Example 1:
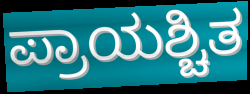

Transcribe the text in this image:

ಪ್ರಾಯಶ್ಚಿತ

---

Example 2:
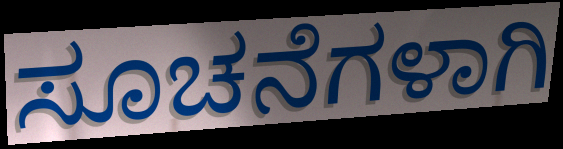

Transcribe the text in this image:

ಸೂಚನೆಗಳಾಗಿ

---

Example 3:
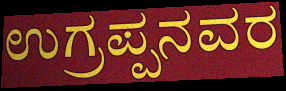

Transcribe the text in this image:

ಉಗ್ರಪ್ಪನವರ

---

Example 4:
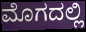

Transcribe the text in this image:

ಮೊಗದಲ್ಲಿ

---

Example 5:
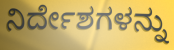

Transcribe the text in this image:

ನಿರ್ದೇಶಗಳನ್ನು